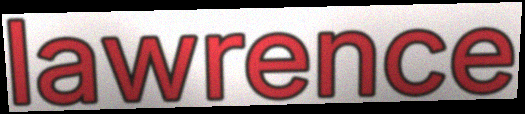
lawrence